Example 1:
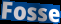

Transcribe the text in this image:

Fosse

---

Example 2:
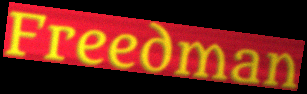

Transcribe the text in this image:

Freedman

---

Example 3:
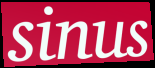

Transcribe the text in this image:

sinus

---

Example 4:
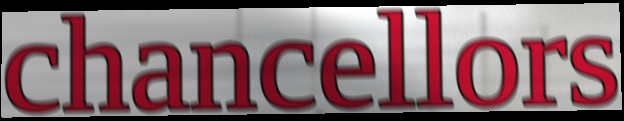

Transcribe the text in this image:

chancellors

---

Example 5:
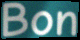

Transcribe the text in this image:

Bon